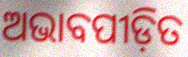
ଅଭାବପୀଡ଼ିତ